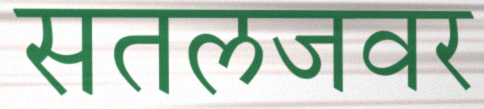
सतलजवर